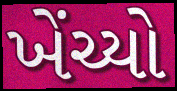
ખેંચ્યો